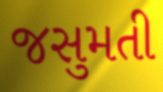
જસુમતી